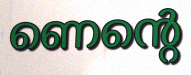
ണെന്റെ